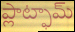
ప్లాట్ఫామ్